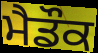
ਮੈਡੌਕ